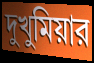
দুখুমিয়ার